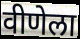
वीणेला